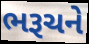
ભરૂચને